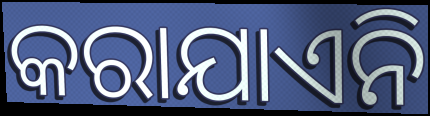
କରାଯାଏନି